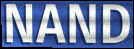
NAND